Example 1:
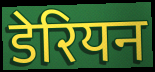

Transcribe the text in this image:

डेरियन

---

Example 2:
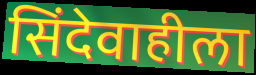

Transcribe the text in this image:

सिंदेवाहीला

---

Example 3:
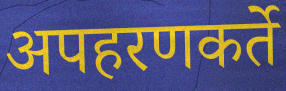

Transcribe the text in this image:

अपहरणकर्ते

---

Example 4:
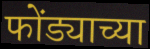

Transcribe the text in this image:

फोंड्याच्या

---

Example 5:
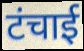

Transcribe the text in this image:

टंचाई